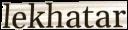
lekhatar